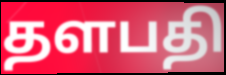
தளபதி